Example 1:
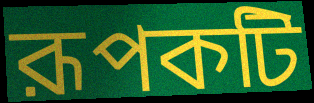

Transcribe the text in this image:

রূপকটি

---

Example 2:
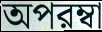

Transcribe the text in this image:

অপরম্বা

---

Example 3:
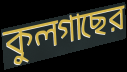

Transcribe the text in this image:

কুলগাছের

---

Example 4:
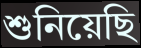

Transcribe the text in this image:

শুনিয়েছি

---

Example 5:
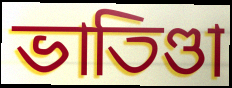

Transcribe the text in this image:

ভাতিণ্ডা